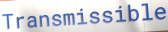
Transmissible